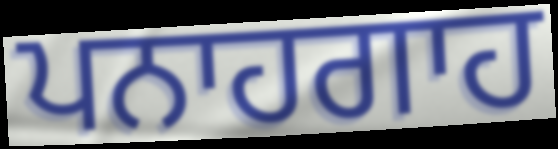
ਪਨਾਹਗਾਹ